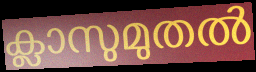
ക്ലാസുമുതൽ